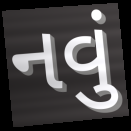
નવું